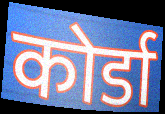
कोर्डा